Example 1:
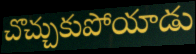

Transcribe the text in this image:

చొచ్చుకుపోయాడు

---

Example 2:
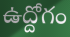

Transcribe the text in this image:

ఉద్దోగం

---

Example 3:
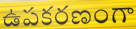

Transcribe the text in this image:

ఉపకరణంగా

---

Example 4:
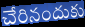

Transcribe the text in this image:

చేరినందుకు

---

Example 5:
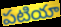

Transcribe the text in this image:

పటియా